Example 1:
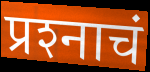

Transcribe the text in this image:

प्रश्नाचं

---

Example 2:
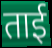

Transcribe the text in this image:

ताई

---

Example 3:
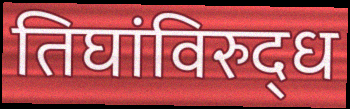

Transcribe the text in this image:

तिघांविरुद्ध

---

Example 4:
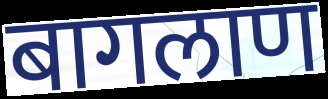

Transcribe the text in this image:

बागलाण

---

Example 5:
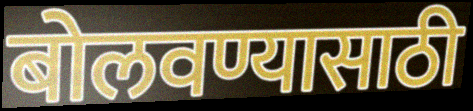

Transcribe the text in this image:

बोलवण्यासाठी